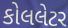
કોલલેટર